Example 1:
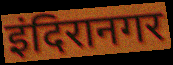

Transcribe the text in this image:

इंदिरानगर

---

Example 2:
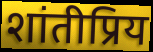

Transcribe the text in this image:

शांतीप्रिय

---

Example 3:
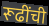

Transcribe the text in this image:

रूढींची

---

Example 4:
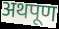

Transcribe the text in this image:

अथपूण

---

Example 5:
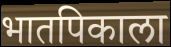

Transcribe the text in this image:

भातपिकाला